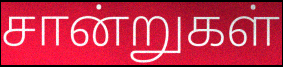
சான்றுகள்